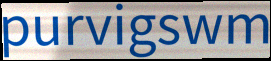
purvigswm